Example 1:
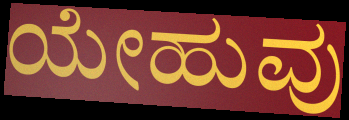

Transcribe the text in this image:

ಯೇಹುವು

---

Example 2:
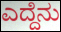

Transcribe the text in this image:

ಎದ್ದೆನು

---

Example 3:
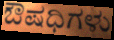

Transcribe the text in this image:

ಔಷಧಿಗಳು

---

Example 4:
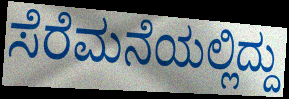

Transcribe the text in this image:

ಸೆರೆಮನೆಯಲ್ಲಿದ್ದು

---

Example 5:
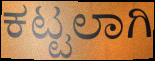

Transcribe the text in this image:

ಕಟ್ಟಲಾಗಿ